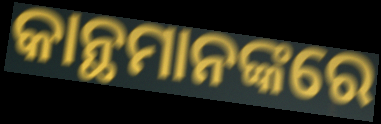
କାନ୍ଥମାନଙ୍କରେ